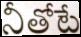
నీతోటే